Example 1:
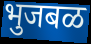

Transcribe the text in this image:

भुजबळ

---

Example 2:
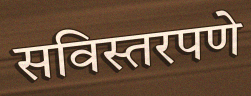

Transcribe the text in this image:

सविस्तरपणे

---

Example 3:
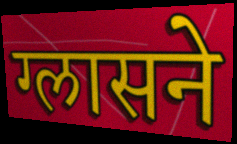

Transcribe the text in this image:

ग्लासने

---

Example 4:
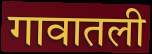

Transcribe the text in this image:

गावातली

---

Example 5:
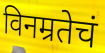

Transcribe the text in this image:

विनम्रतेचं